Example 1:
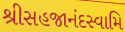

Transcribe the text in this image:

શ્રીસહજાનંદસ્વામિ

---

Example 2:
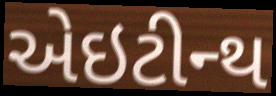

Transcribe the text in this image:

એઇટીન્થ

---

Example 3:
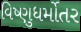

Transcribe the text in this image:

વિષ્ણુધર્મોતર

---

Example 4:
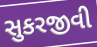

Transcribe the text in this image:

સુકરજીવી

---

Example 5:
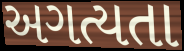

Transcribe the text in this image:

અગત્યતા